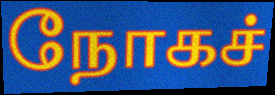
நோகச்